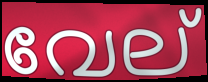
വേല്